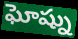
ఘోష్ను